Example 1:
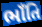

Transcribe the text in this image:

ભાઁતિ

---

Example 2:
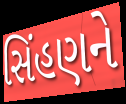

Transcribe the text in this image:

સિંહણને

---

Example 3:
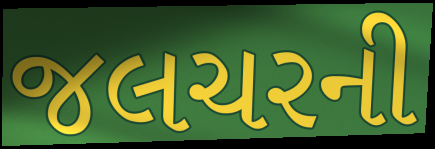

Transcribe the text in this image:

જલચરની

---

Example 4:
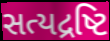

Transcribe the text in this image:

સત્યદ્રષ્ટિ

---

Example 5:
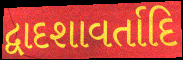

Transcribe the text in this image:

દ્વાદશાવર્તાદિ